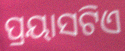
ପ୍ରୟାସଟିଏ